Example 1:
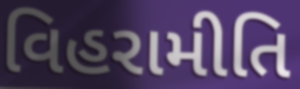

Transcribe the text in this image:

વિહરામીતિ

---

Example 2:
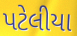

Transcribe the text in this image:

પટેલીયા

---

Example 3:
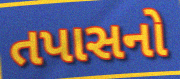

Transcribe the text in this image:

તપાસનો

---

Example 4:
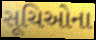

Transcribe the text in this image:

સૂચિઓના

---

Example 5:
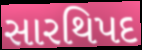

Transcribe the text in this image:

સારથિપદ